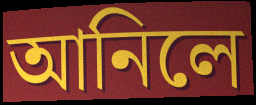
আনিলে